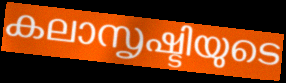
കലാസൃഷ്ടിയുടെ